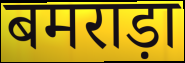
बमराड़ा